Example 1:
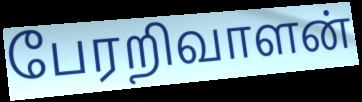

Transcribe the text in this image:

பேரறிவாளன்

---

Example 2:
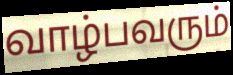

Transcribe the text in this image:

வாழ்பவரும்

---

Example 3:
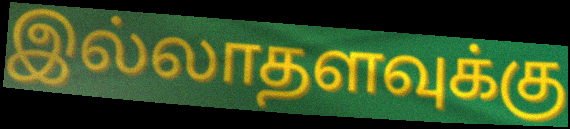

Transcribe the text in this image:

இல்லாதளவுக்கு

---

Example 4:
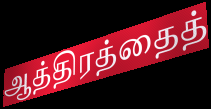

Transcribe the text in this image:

ஆத்திரத்தைத்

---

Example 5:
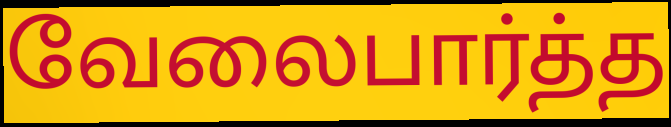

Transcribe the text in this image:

வேலைபார்த்த